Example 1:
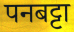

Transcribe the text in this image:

पनबट्टा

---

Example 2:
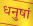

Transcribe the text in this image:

धनुषां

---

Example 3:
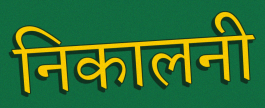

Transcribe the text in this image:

निकालनी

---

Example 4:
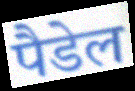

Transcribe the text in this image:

पैडेल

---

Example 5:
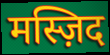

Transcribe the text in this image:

मस्ज़िद